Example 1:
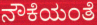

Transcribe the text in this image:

ನೌಕೆಯಂತೆ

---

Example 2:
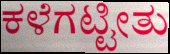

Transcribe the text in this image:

ಕಳೆಗಟ್ಟೀತು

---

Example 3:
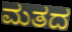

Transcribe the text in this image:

ಮತದ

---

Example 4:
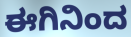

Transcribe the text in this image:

ಈಗಿನಿಂದ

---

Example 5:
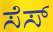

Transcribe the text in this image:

ಸೆಸ್